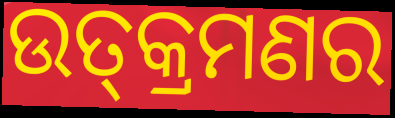
ଉତ୍‍କ୍ରମଣର